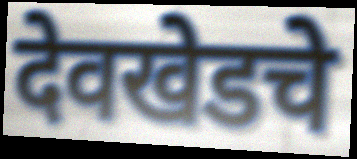
देवखेडचे